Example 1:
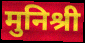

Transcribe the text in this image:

मुनिश्री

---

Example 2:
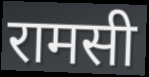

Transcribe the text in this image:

रामसी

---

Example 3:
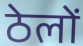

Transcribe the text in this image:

ठेलों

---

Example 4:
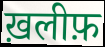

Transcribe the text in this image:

ख़लीफ़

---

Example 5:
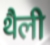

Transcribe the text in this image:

थैली